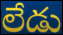
లేడు